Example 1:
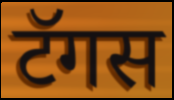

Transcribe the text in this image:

टॅगस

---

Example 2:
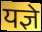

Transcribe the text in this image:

यज्ञे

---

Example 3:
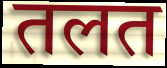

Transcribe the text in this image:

तलत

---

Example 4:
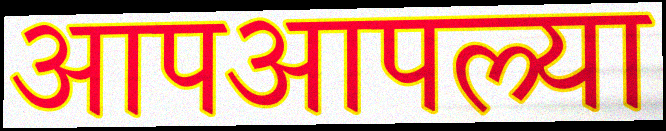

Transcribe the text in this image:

आपआपल्या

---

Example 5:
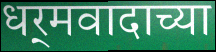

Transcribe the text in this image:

धर्मवादाच्या